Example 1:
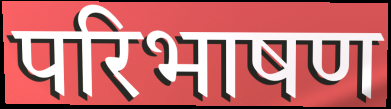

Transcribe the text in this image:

परिभाषण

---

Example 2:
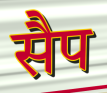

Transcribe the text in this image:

सैप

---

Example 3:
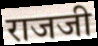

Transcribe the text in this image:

राजजी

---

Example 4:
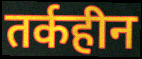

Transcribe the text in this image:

तर्कहीन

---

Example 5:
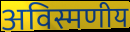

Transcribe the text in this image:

अविस्मणीय